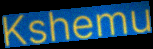
Kshemu